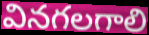
వినగలగాలి